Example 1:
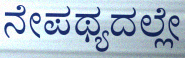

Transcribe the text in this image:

ನೇಪಥ್ಯದಲ್ಲೇ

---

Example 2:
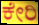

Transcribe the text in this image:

ಕೇರಿ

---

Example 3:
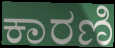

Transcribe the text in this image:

ಕಾರಣಿ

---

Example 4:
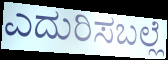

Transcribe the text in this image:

ಎದುರಿಸಬಲ್ಲೆ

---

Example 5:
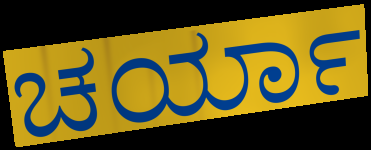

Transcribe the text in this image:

ಚರ್ಯಾ